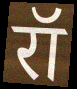
रॉ